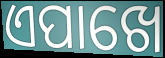
ଏପାଖେ